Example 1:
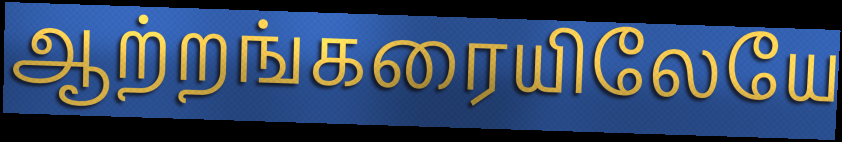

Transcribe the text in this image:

ஆற்றங்கரையிலேயே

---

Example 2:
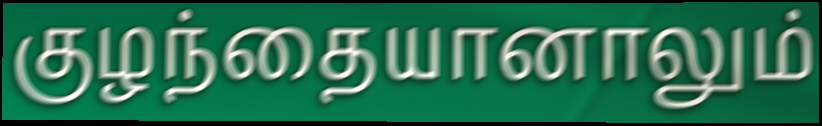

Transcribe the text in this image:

குழந்தையானாலும்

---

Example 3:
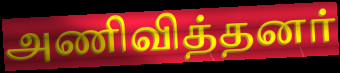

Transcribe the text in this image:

அணிவித்தனர்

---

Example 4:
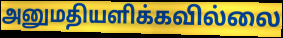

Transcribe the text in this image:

அனுமதியளிக்கவில்லை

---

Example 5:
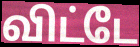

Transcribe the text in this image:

விட்டே